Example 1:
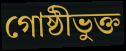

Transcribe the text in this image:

গোষ্ঠীভুক্ত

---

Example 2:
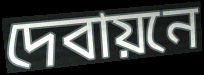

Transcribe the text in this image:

দেবায়নে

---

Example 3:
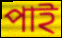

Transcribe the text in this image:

পাই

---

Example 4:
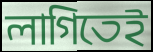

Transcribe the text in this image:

লাগিতেই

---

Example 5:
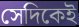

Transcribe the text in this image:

সেদিকেই